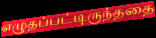
எழுதப்பட்டிருந்ததை